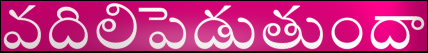
వదిలిపెడుతుందా